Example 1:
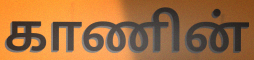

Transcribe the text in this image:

காணின்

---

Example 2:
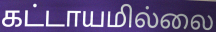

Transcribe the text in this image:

கட்டாயமில்லை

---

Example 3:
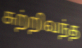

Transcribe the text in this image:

சுற்றிவந்த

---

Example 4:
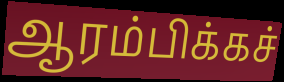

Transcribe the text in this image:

ஆரம்பிக்கச்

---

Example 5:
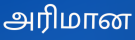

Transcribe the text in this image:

அரிமான